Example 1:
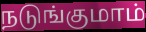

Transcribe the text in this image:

நடுங்குமாம்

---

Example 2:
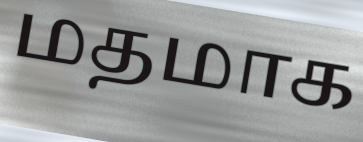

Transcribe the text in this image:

மதமாக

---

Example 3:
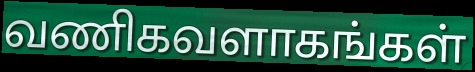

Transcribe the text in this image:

வணிகவளாகங்கள்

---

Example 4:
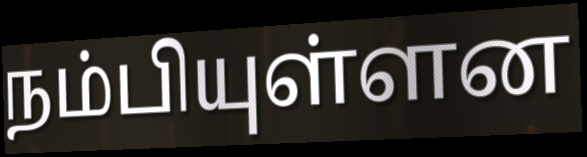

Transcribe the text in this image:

நம்பியுள்ளன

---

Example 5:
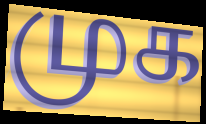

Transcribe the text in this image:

முக